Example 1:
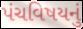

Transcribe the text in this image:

પંચવિષયનું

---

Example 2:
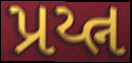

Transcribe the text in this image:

પ્રય્ત્ન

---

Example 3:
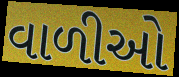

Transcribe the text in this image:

વાળીઓ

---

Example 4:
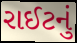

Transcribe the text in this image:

રાઈટનું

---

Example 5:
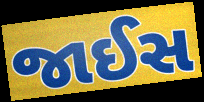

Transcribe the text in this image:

જાઈસ